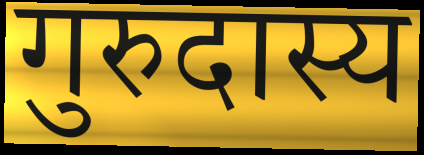
गुरुदास्य